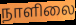
நாளிலை